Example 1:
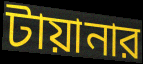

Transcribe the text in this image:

টায়ানার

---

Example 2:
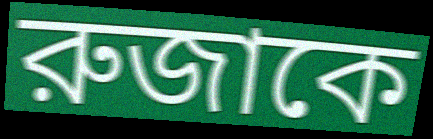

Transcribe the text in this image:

রুজাকে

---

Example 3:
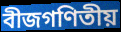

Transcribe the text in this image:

বীজগণিতীয়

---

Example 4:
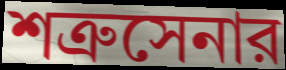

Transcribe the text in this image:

শত্রুসেনার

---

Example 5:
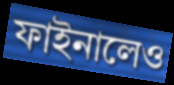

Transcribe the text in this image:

ফাইনালেও